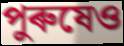
পুৰুষেও